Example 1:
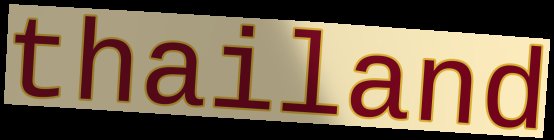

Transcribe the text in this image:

thailand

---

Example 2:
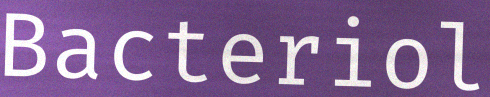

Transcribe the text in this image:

Bacteriol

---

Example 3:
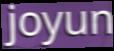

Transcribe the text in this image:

joyun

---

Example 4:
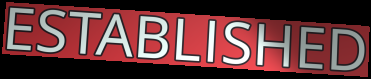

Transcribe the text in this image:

ESTABLISHED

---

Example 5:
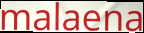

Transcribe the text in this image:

malaena